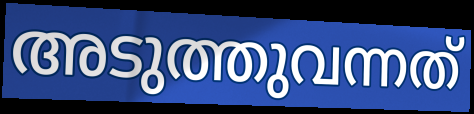
അടുത്തുവന്നത്